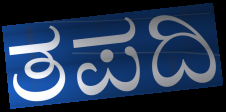
ತಪದಿ